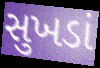
સુખડાં